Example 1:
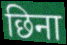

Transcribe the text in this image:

छिना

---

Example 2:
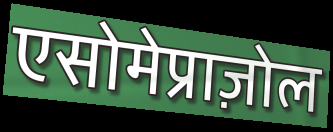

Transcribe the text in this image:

एसोमेप्राज़ोल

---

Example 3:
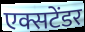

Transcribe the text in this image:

एक्सटेंडर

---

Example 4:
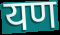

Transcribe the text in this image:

यण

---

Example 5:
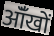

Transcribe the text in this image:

ऑँखों